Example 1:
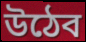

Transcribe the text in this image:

উঠেব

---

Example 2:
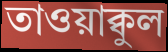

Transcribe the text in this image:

তাওয়াক্বুল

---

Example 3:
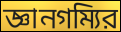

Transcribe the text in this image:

জ্ঞানগম্যির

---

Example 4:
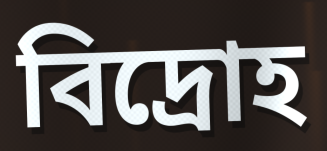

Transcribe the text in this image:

বিদ্রোহ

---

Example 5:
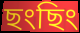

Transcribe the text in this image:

ছংছিং